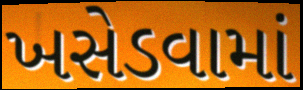
ખસેડવામાં